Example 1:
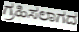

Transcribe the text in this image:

ಗ್ರಹಿಸಲಾಗದ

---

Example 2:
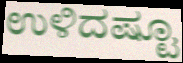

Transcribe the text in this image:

ಉಳಿದಷ್ಟೂ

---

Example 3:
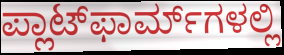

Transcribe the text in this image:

ಪ್ಲಾಟ್‌ಫಾರ್ಮ್‌ಗಳಲ್ಲಿ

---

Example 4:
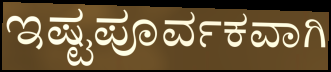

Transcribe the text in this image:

ಇಷ್ಟಪೂರ್ವಕವಾಗಿ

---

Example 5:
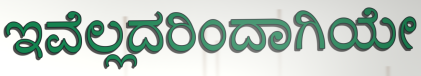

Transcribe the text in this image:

ಇವೆಲ್ಲದರಿಂದಾಗಿಯೇ